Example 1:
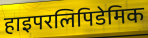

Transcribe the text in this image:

हाइपरलिपिडेमिक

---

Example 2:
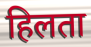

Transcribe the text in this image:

हिलता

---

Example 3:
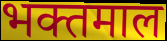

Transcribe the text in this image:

भक्तमाल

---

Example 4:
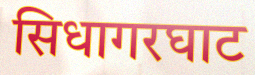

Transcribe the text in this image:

सिधागरघाट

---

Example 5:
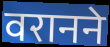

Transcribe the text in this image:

वरानने